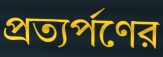
প্রত্যর্পণের